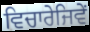
ਵਿਚਾਰੇਜਿਵੇਂ